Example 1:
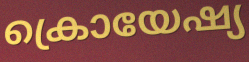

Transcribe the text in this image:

ക്രൊയേഷ്യ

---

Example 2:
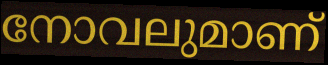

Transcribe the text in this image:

നോവലുമാണ്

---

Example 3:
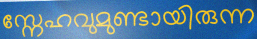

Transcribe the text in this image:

സ്നേഹവുമുണ്ടായിരുന്ന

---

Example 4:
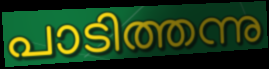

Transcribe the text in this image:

പാടിത്തന്നു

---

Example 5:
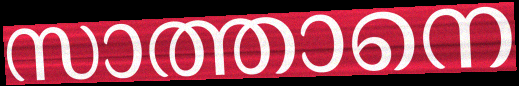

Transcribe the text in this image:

സാത്താനെ